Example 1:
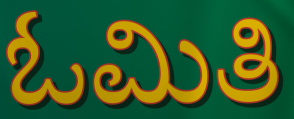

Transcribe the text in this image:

ಓಮಿತಿ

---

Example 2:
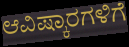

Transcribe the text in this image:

ಆವಿಷ್ಕಾರಗಳಿಗೆ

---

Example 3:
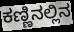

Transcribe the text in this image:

ಕಣ್ಣಿನಲ್ಲಿನ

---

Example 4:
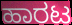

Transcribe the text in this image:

ಹಾರಟ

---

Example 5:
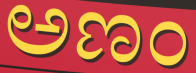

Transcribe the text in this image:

ಅಣಂ